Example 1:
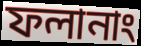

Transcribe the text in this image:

ফলানাং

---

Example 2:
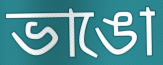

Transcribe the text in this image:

ভাঙো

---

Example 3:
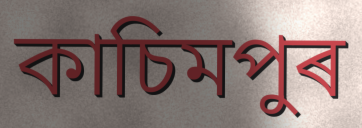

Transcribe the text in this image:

কাচিমপুৰ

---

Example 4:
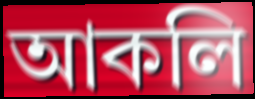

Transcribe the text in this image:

আকলি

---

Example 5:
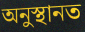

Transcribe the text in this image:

অনুস্থানত